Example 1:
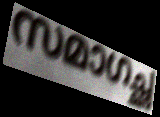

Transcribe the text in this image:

സമാഗച്ഛ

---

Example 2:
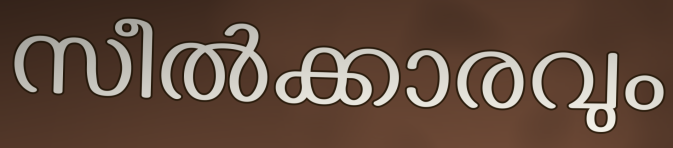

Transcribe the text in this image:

സീൽക്കാരവും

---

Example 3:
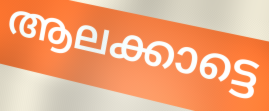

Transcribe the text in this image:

ആലക്കാട്ടെ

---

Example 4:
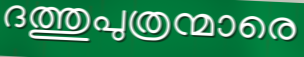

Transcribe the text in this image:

ദത്തുപുത്രന്മാരെ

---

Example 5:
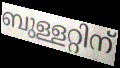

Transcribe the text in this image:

ബുള്ളറ്റിന്